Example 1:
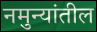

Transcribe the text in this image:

नमुन्यांतील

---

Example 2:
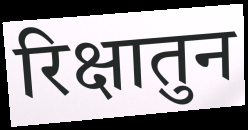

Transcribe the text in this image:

रिक्षातुन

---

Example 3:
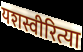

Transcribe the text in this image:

यशस्वीरित्या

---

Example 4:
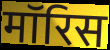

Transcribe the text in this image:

मॉरिस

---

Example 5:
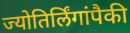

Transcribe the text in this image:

ज्योतिर्लिंगांपैकी